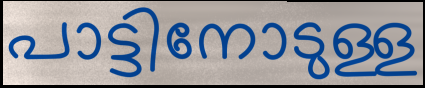
പാട്ടിനോടുള്ള